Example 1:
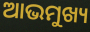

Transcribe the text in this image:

ଆଭମୁଖ୍ୟ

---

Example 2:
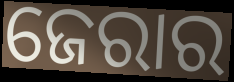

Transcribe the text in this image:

ଜେରାର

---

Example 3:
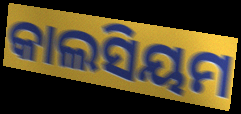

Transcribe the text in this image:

କାଲସିୟମ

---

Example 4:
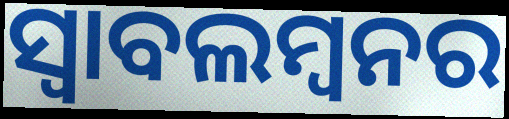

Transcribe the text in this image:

ସ୍ବାବଲମ୍ବନର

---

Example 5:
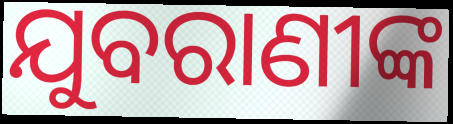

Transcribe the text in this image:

ଯୁବରାଣୀଙ୍କ